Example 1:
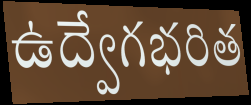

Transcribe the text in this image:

ఉద్వేగభరిత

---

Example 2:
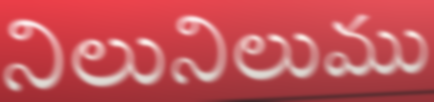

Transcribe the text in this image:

నిలునిలుము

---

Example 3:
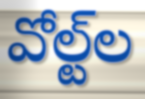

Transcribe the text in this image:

వోల్ట్‌ల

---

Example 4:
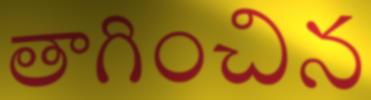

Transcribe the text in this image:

తాగించిన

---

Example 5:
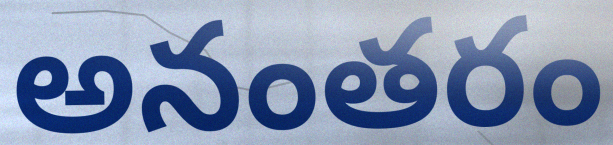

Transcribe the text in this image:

అనంతరం